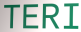
TERI